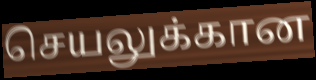
செயலுக்கான